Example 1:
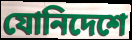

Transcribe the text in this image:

যোনিদেশে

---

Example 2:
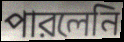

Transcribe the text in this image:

পারলেনি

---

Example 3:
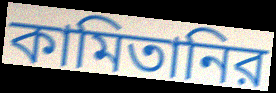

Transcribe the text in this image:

কামিতানির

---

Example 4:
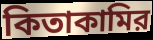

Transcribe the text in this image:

কিতাকামির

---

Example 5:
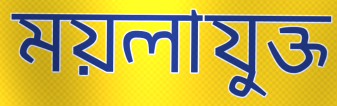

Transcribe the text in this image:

ময়লাযুক্ত